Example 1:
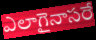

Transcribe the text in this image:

ఎలాగైనాసరే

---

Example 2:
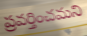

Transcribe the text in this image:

ప్రవర్తించమని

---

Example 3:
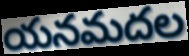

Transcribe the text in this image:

యనమదల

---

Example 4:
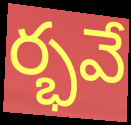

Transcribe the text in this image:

ర్భవే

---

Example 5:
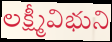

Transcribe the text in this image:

లక్ష్మీవిభుని